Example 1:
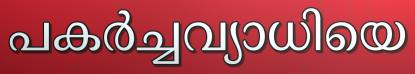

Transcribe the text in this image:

പകർച്ചവ്യാധിയെ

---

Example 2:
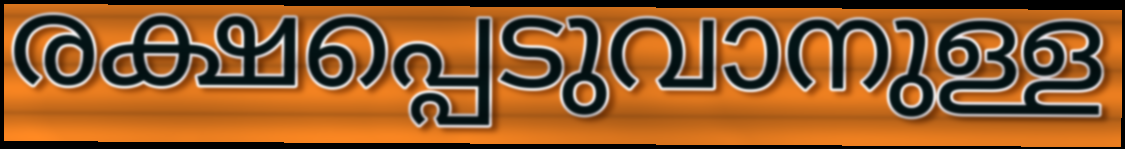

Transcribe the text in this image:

രക്ഷപ്പെടുവാനുള്ള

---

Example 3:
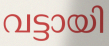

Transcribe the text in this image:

വട്ടായി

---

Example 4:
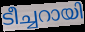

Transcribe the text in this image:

ടീച്ചറായി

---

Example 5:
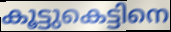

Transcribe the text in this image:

കൂട്ടുകെട്ടിനെ